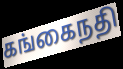
கங்கைநதி